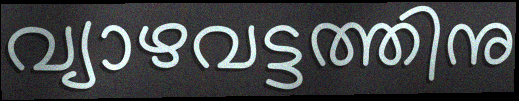
വ്യാഴവട്ടത്തിനു